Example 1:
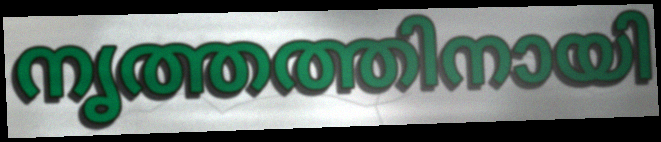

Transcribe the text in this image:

നൃത്തത്തിനായി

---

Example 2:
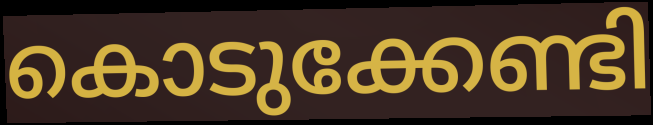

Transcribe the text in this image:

കൊടുക്കേണ്ടി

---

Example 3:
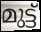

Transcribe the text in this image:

മുട്ട്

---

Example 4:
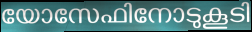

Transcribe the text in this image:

യോസേഫിനോടുകൂടി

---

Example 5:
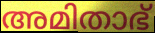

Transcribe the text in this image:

അമിതാഭ്